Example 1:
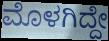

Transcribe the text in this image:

ಮೊಳಗಿದ್ದೇ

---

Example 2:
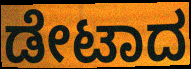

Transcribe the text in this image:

ಡೇಟಾದ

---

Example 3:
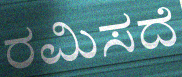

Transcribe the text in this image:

ರಮಿಸದೆ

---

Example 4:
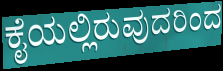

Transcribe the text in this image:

ಕೈಯಲ್ಲಿರುವುದರಿಂದ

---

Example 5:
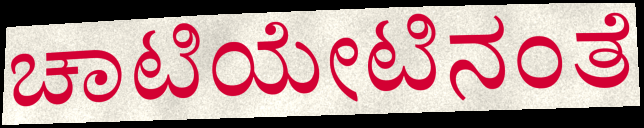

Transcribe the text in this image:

ಚಾಟಿಯೇಟಿನಂತೆ